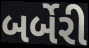
બર્બેરી